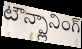
టౌన్ప్లానింగ్